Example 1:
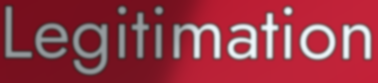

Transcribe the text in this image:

Legitimation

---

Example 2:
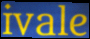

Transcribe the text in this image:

ivale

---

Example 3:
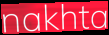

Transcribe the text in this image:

nakhta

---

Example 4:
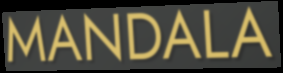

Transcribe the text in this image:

MANDALA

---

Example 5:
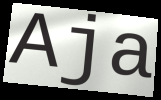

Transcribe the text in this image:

Aja